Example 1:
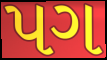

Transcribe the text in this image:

પગ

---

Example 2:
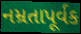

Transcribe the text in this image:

નમ્રતાપૂર્વક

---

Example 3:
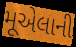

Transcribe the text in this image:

મૂએલાની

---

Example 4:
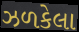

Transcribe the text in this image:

ઝળકેલા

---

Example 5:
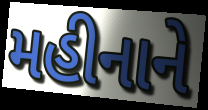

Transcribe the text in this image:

મહીનાને